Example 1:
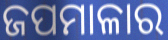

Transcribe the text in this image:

ଜପମାଳାର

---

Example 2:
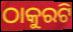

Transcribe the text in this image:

ଠାକୁରଟି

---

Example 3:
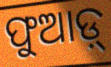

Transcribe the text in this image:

ଫୁଆଡ଼୍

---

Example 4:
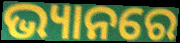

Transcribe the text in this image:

ଭ୍ୟାନରେ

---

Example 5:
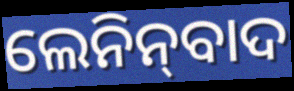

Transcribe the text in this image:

ଲେନିନ୍‌ବାଦ